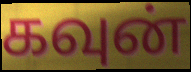
கவுன்